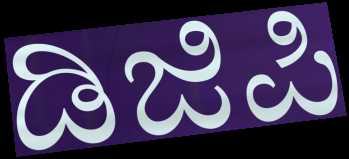
ಡಿಜಿಪಿ